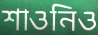
শাওনিও